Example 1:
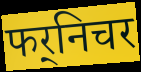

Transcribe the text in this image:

फर्निचर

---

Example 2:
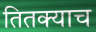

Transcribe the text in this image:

तितक्‍याच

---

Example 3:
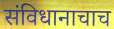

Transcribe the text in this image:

संविधानाचाच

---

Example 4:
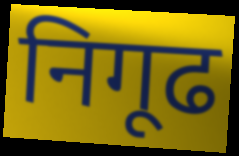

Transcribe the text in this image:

निगूढ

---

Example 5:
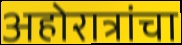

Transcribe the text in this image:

अहोरात्रांचा